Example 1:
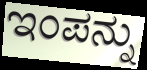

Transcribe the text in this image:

ಇಂಪನ್ನು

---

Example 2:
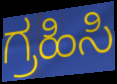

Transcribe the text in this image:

ಗ್ರಹಿಸಿ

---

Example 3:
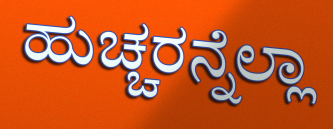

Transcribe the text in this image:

ಹುಚ್ಚರನ್ನೆಲ್ಲಾ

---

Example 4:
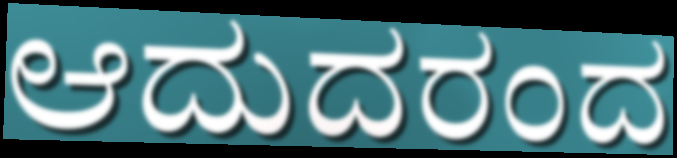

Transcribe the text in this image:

ಆದುದರಂದ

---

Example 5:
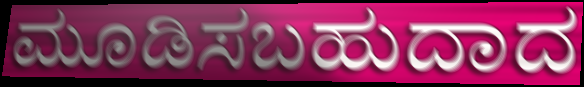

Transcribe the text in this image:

ಮೂಡಿಸಬಹುದಾದ